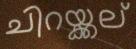
ചിറയ്ക്കല്